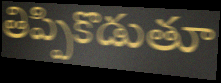
తిప్పికొడుతూ